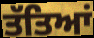
ਤੱਤਿਆਂ